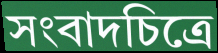
সংবাদচিত্রে